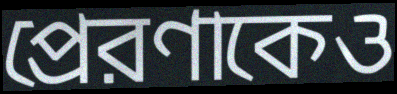
প্রেরণাকেও